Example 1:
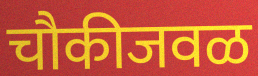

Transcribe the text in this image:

चौकीजवळ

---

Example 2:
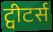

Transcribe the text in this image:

ट्वीटर्स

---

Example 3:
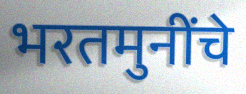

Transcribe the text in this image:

भरतमुनींचे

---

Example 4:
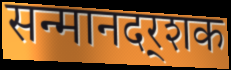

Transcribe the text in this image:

सन्मानदर्शक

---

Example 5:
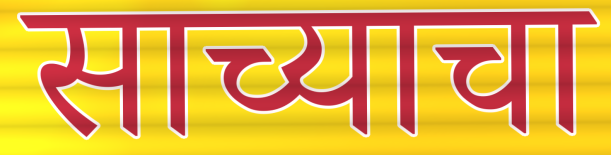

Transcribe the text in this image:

साच्याचा